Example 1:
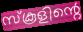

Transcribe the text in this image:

സ്കൂളിന്റെ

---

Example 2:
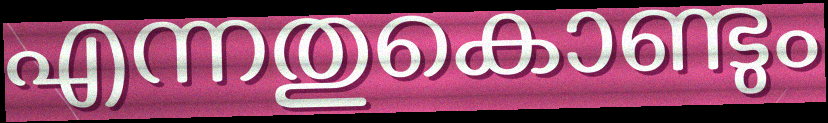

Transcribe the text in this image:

എന്നതുകൊണ്ടും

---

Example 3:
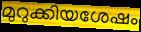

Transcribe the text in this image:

മുറുക്കിയശേഷം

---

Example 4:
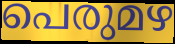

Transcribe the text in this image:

പെരുമഴ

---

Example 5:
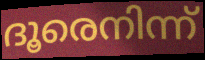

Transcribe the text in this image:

ദൂരെനിന്ന്